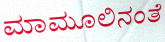
ಮಾಮೂಲಿನಂತೆ